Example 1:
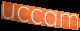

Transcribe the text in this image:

uccam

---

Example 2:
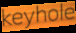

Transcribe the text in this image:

keyhole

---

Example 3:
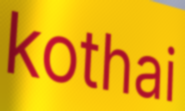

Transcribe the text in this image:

kothai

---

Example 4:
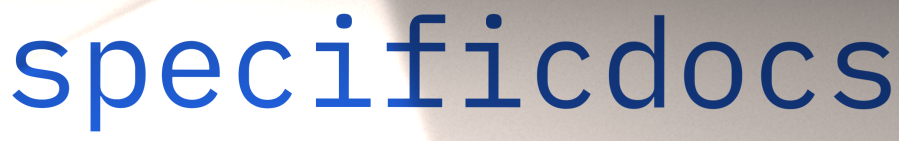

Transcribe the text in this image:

specificdocs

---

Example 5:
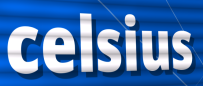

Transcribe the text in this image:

celsius